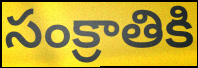
సంక్రాతికి